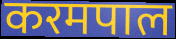
करमपाल